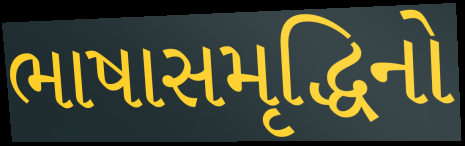
ભાષાસમૃદ્ધિનો